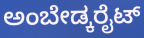
ಅಂಬೇಡ್ಕರೈಟ್